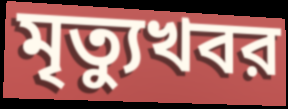
মৃত্যুখবর